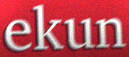
ekun